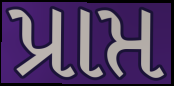
પ્રાપ્ત